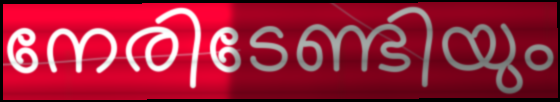
നേരിടേണ്ടിയും